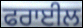
ਫਰਾਈਲ